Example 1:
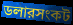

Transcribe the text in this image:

ডলারসংকট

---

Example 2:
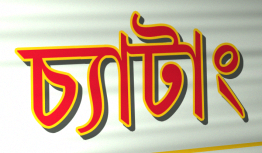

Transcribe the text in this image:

চ্যাটাং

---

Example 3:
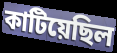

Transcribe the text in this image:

কাটিয়েছিল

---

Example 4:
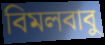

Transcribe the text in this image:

বিমলবাবু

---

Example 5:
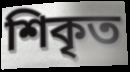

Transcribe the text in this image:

শিকৃত